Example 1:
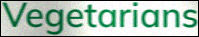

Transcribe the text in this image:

Vegetarians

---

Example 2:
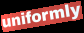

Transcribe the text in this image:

uniformly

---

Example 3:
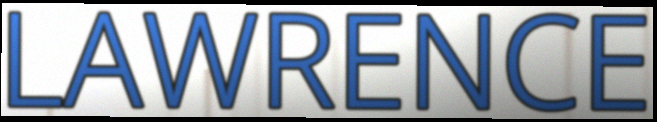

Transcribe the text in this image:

LAWRENCE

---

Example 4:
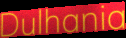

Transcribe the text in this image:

Dulhania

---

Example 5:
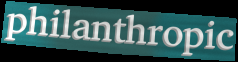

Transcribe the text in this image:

philanthropic